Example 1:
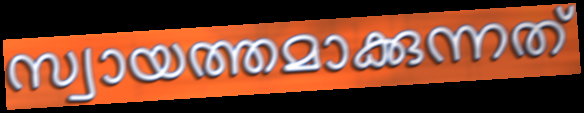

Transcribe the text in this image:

സ്വായത്തമാക്കുന്നത്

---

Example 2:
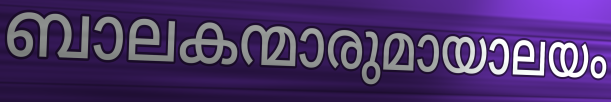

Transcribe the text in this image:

ബാലകന്മാരുമായാലയം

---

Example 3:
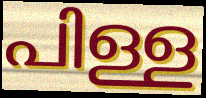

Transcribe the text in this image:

പിള്ള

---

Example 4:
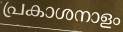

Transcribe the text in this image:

പ്രകാശനാളം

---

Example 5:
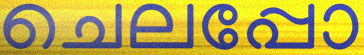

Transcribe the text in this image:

ചെലപ്പോ